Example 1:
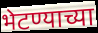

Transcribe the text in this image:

भेटण्याच्या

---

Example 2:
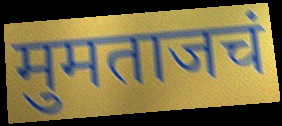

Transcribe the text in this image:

मुमताजचं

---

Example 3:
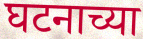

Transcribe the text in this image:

घटनाच्या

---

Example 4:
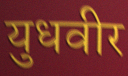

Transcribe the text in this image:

युधवीर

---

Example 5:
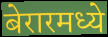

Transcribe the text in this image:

बेरारमध्ये